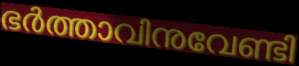
ഭർത്താവിനുവേണ്ടി